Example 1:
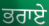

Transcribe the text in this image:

ਭਰਾਏ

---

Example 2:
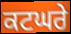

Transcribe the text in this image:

ਕਟਘਰੇ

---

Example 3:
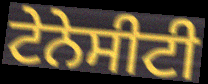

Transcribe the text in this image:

ਟੇਨੇਸੀਟੀ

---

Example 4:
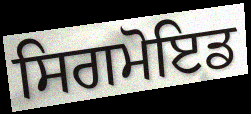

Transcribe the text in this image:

ਸਿਗਮੋਇਡ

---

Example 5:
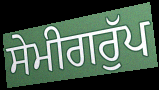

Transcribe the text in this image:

ਸੇਮੀਗਰੁੱਪ